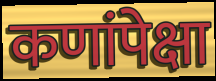
कणांपेक्षा